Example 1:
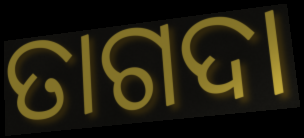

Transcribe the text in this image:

ତାଗଦା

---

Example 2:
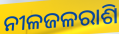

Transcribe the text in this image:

ନୀଳଜଳରାଶି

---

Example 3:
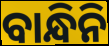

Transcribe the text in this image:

ବାନ୍ଧିନି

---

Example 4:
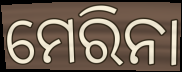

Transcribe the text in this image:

ମେରିନା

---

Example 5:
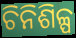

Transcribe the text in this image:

ଚିନିଶିଳ୍ପ